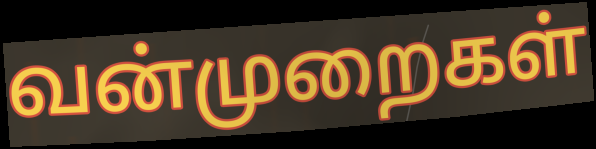
வன்முறைகள்